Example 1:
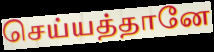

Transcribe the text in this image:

செய்யத்தானே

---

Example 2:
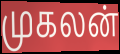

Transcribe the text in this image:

முகலன்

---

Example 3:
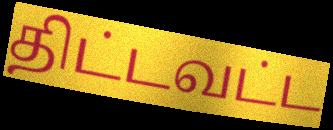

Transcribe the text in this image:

திட்டவட்ட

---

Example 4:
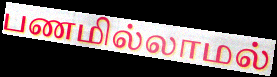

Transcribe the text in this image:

பணமில்லாமல்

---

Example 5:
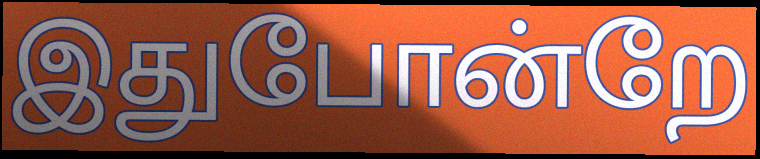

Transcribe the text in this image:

இதுபோன்றே